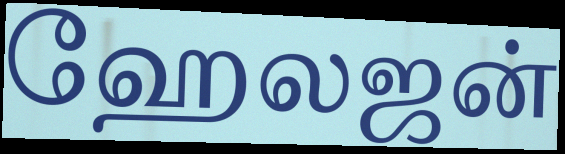
ஹேலஜன்